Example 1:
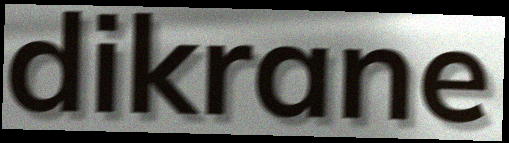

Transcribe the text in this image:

dikrane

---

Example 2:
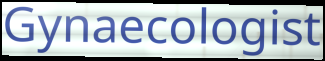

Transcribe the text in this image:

Gynaecologist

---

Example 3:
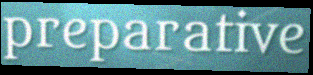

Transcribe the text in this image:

preparative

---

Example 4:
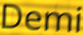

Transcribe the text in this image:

Demi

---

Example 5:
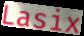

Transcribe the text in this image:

Lasix